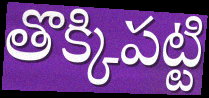
తొక్కిపట్టి